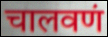
चालवणं